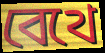
বেথে